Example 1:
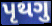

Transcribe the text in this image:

પૃથગુ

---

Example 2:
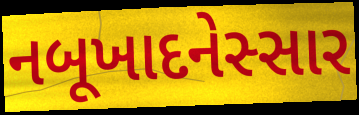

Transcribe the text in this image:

નબૂખાદનેસ્સાર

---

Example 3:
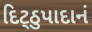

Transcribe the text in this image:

દિટ્ઠુપાદાનં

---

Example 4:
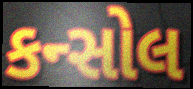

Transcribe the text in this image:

કન્સોલ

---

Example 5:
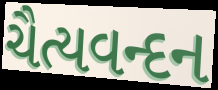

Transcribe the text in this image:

ચૈત્યવન્દન